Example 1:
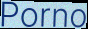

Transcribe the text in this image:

Porno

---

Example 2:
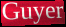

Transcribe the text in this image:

Guyer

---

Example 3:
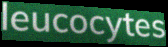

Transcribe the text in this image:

leucocytes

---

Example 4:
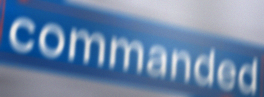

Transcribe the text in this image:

commanded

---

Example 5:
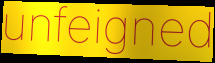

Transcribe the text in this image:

unfeigned